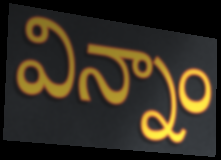
విన్నాం